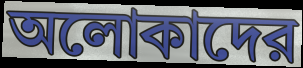
অলোকাদের